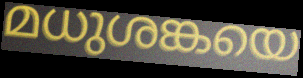
മധുശങ്കയെ